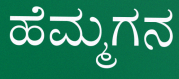
ಹೆಮ್ಮಗನ